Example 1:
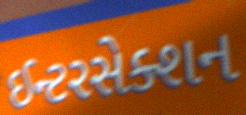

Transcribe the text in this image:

ઈન્ટરસેક્શન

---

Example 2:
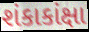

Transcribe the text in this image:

શંકાકાંક્ષા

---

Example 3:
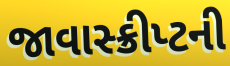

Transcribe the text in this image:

જાવાસ્ક્રીપ્ટની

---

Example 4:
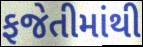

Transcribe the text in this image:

ફજેતીમાંથી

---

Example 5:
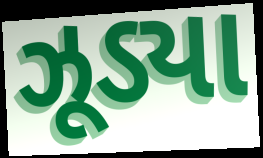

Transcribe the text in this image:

ઝૂડ્યા